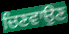
ਚਿਣਵਾਉਣ